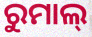
ରୁମାଲ୍